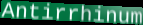
Antirrhinum